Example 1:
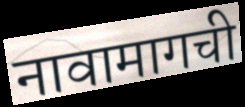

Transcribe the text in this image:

नावामागची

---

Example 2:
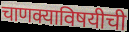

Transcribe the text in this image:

चाणक्याविषयीची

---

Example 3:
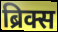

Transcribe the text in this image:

ब्रिक्स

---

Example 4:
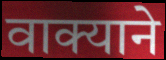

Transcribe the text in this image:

वाक्याने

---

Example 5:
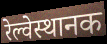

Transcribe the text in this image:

रेल्वेस्थानक